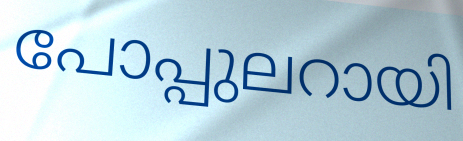
പോപ്പുലറായി